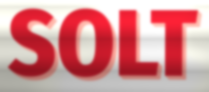
SOLT